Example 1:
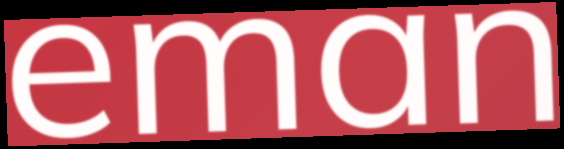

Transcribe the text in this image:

eman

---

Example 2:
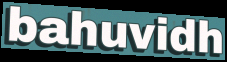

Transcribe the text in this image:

bahuvidh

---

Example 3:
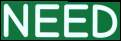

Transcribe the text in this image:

NEED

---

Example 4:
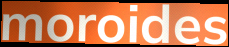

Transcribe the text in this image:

moroides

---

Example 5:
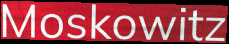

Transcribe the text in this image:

Moskowitz